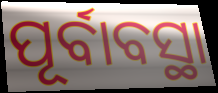
ପୂର୍ବାବସ୍ଥା